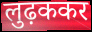
लुढ़ककर